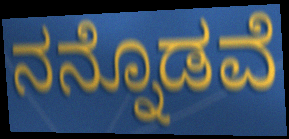
ನನ್ನೊಡವೆ